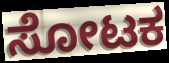
ಸೋಟಕ